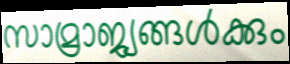
സാമ്രാജ്യങ്ങൾക്കും